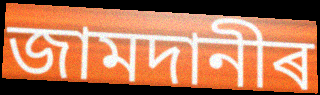
জামদানীৰ